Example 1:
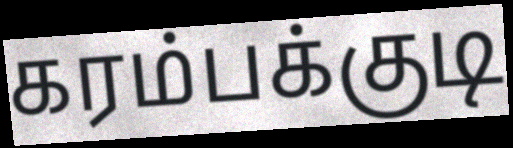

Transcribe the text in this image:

கரம்பக்குடி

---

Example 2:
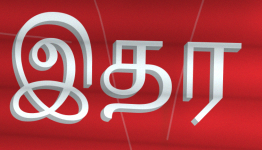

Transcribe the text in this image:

இதர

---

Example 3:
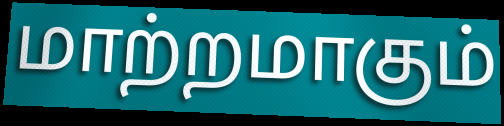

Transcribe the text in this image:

மாற்றமாகும்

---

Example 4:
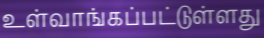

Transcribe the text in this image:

உள்வாங்கப்பட்டுள்ளது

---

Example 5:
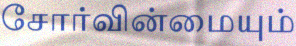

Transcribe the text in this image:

சோர்வின்மையும்